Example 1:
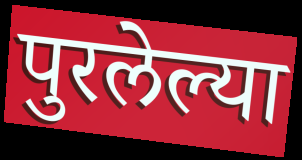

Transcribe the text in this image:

पुरलेल्या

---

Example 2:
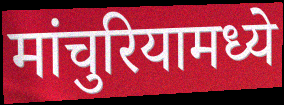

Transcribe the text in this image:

मांचुरियामध्ये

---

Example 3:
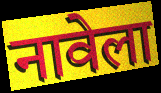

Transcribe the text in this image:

नावेला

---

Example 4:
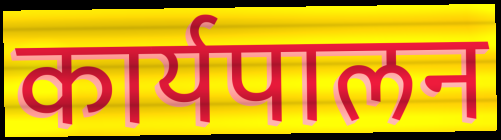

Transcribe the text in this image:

कार्यपालन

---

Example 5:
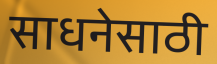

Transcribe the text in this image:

साधनेसाठी